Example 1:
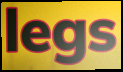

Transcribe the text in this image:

legs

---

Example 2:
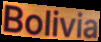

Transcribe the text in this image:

Bolivia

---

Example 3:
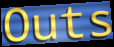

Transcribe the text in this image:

Outs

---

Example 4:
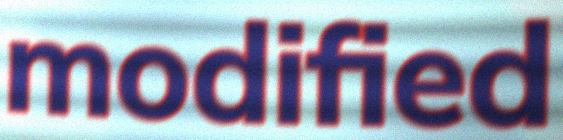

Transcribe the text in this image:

modified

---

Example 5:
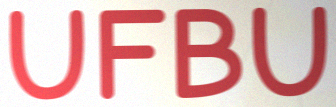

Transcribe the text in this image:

UFBU